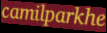
camilparkhe